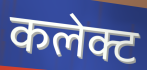
कलेक्ट